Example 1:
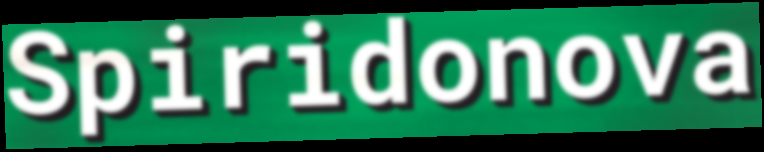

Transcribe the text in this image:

Spiridonova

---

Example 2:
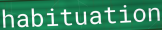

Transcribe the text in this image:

habituation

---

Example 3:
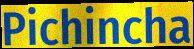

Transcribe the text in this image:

Pichincha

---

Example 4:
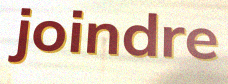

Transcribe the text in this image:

joindre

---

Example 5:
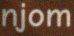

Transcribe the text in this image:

njom